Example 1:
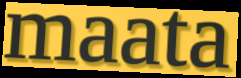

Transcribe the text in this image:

maata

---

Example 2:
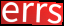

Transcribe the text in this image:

errs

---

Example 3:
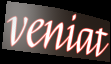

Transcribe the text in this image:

veniat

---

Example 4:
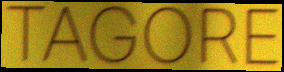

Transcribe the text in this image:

TAGORE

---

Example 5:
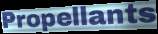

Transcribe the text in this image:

Propellants